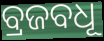
ବ୍ରଜବଧୂ